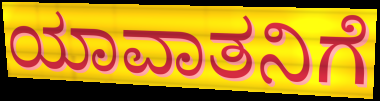
ಯಾವಾತನಿಗೆ